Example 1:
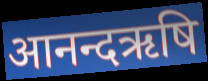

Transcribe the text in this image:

आनन्दऋषि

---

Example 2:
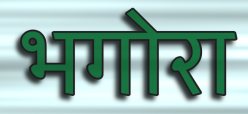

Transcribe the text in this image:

भगोरा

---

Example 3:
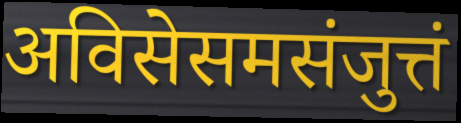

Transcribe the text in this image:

अविसेसमसंजुत्तं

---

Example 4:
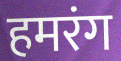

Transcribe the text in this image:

हमरंग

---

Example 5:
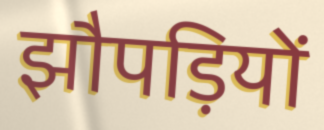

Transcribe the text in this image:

झौपड़ियों